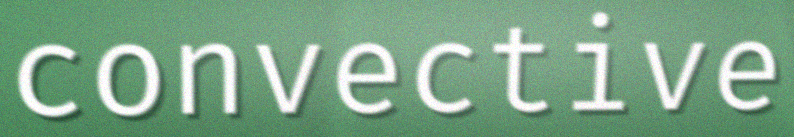
convective